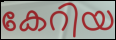
കേറിയ